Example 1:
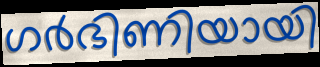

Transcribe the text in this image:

ഗർഭിണിയായി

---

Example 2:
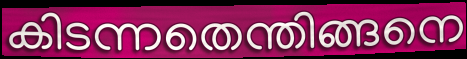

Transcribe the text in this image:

കിടന്നതെന്തിങ്ങനെ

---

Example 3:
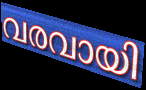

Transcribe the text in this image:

വരവായി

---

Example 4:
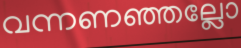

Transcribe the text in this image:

വന്നണഞ്ഞല്ലോ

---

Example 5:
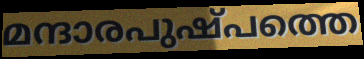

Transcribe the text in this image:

മന്ദാരപുഷ്പത്തെ